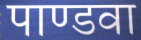
पाण्डवा